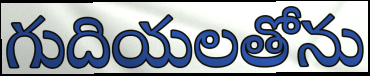
గుదియలతోను